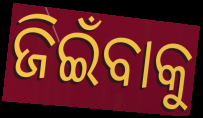
ଜିଇଁବାକୁ